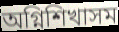
অগ্নিশিখাসম